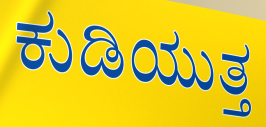
ಕುಡಿಯುತ್ತ